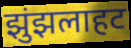
झुंझलाहट